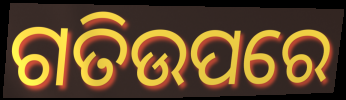
ଗତିଉପରେ